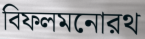
বিফলমনোরথ